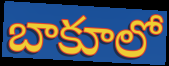
బాకూలో